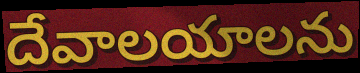
దేవాలయాలను